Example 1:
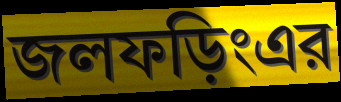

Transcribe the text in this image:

জলফড়িংএর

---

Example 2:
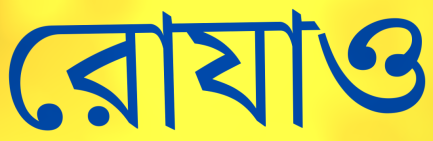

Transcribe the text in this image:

রোযাও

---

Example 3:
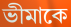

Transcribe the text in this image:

ভীমাকে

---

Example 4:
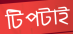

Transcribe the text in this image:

টিপটাই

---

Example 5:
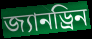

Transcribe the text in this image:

জ্যানড্রিন